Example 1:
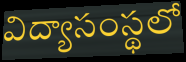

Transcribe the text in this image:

విద్యాసంస్థలో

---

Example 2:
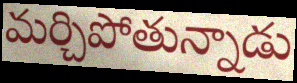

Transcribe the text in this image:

మర్చిపోతున్నాడు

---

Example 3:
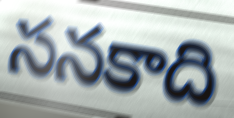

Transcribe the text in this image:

సనకాది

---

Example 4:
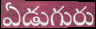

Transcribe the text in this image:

ఏడుగురు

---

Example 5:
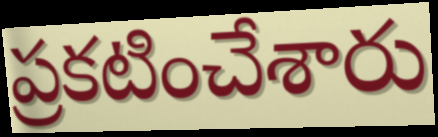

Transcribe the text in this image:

ప్రకటించేశారు